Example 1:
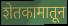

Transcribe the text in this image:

शेतकामातून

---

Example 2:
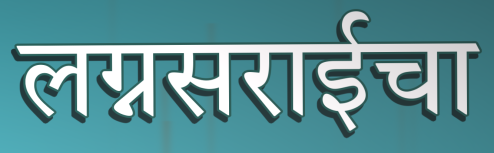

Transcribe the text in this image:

लग्नसराईचा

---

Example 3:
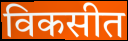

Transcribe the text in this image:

विकसीत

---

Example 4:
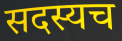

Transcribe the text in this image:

सदस्यच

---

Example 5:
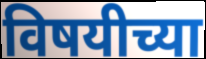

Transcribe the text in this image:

विषयीच्या